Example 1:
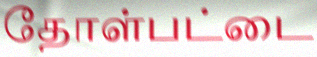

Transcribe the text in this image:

தோள்பட்டை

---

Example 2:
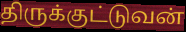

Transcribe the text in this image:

திருக்குட்டுவன்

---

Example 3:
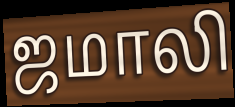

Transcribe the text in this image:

ஜமாலி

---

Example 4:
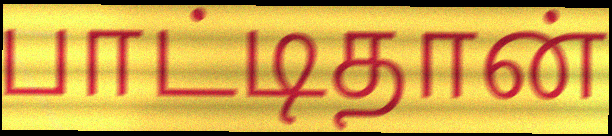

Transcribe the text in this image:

பாட்டிதான்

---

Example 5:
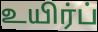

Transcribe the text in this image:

உயிர்ப்